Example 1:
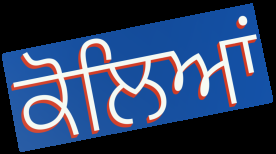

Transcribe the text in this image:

ਕੋਲਿਆਂ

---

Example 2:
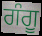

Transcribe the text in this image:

ਗੰਗੂ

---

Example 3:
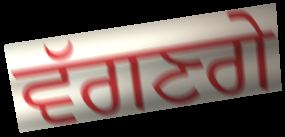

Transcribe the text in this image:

ਵੱਗਣਗੇ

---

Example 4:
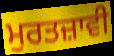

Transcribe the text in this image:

ਮੁਰਤਜ਼ਾਵੀ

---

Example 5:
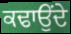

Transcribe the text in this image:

ਕਢਾਉਂਦੇ